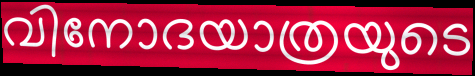
വിനോദയാത്രയുടെ